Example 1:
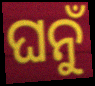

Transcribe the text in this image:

ଘନୁଁ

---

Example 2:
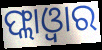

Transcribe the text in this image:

ଫ୍ଲାଓ୍ବାର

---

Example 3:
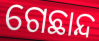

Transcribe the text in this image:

ଗେଛାନ୍ଦ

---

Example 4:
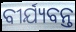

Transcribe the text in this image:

ବୀର୍ଯ୍ୟବନ୍ତ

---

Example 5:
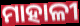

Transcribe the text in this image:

ମାହାଳୀ